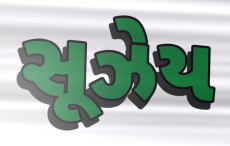
સૂઝેય